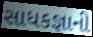
સાધકજ્ઞાની